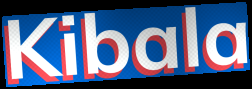
Kibala